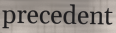
precedent